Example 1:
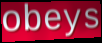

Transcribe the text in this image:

obeys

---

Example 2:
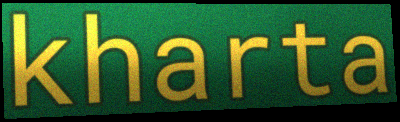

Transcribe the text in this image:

kharta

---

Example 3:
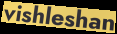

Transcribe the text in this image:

vishleshan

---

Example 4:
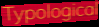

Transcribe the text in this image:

Typological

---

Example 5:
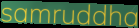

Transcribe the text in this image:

samruddha